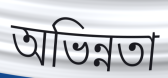
অভিন্নতা